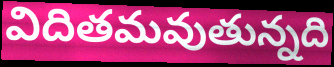
విదితమవుతున్నది